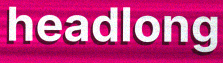
headlong